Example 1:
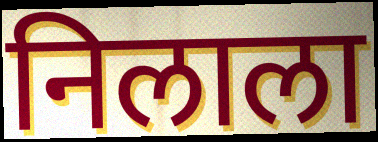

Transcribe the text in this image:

निलाला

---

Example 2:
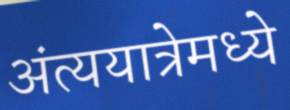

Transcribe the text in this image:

अंत्ययात्रेमध्ये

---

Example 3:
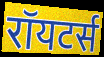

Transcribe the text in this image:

रॉयटर्स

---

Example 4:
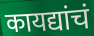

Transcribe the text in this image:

कायद्यांचं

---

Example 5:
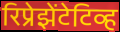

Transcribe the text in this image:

रिप्रेझेंटेटिव्ह